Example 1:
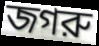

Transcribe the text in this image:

জগরু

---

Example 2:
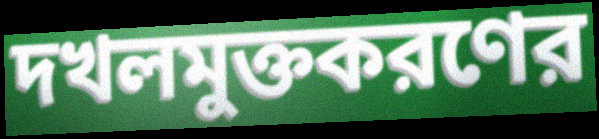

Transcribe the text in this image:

দখলমুক্তকরণের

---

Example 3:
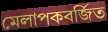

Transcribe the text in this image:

মেলাপকবর্জিত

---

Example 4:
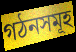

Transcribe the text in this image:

গঠনসমূহ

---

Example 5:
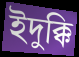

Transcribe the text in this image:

ইদুক্কি